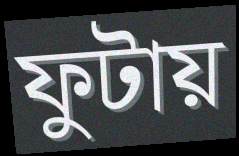
ফুটায়